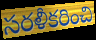
సరళీకరించి